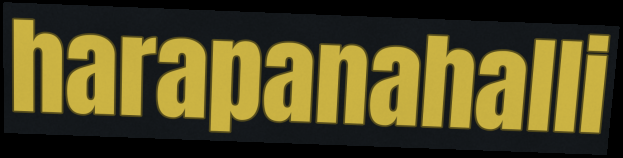
harapanahalli